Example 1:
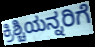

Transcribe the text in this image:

ಕ್ರಿಶ್ಚಿಯನ್ನರಿಗೆ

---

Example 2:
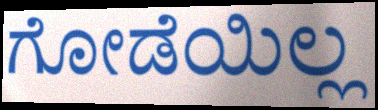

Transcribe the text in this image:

ಗೋಡೆಯಿಲ್ಲ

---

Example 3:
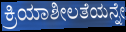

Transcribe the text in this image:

ಕ್ರಿಯಾಶೀಲತೆಯನ್ನೇ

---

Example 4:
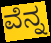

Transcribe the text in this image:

ವೆನ್ನ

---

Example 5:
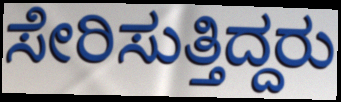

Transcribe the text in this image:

ಸೇರಿಸುತ್ತಿದ್ದರು